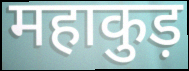
महाकुड़